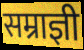
सम्राज्ञी